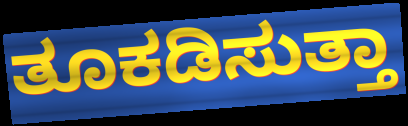
ತೂಕಡಿಸುತ್ತಾ